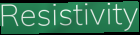
Resistivity